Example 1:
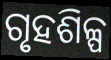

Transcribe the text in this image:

ଗୃହଶିଳ୍ପ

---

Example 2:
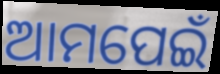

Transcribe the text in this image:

ଆମପେଇଁ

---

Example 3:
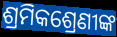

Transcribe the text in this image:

ଶ୍ରମିକଶ୍ରେଣୀଙ୍କ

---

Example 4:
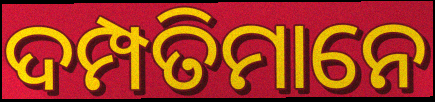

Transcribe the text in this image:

ଦମ୍ପତିମାନେ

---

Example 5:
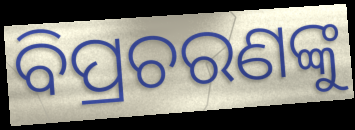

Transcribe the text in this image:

ବିପ୍ରଚରଣଙ୍କୁ